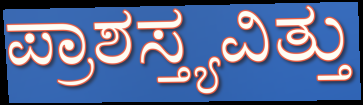
ಪ್ರಾಶಸ್ತ್ಯವಿತ್ತು